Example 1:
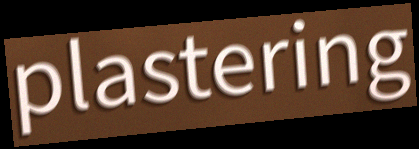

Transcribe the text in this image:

plastering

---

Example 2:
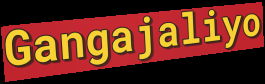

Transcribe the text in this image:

Gangajaliyo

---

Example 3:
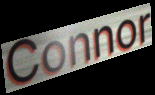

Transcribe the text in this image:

Connor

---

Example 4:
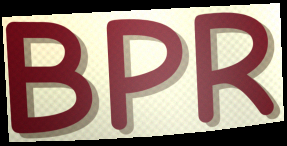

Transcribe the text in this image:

BPR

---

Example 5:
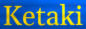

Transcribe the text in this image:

Ketaki